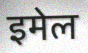
इमेल